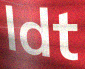
ldt